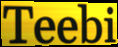
Teebi